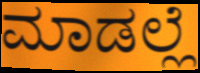
ಮಾಡಲ್ಲೆ